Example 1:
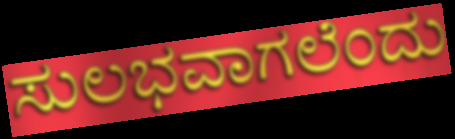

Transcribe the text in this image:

ಸುಲಭವಾಗಲೆಂದು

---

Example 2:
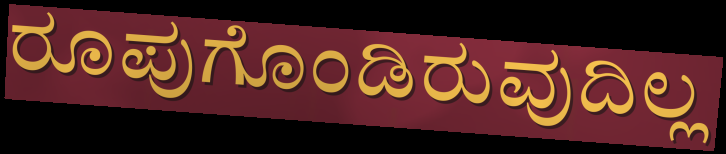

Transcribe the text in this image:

ರೂಪುಗೊಂಡಿರುವುದಿಲ್ಲ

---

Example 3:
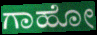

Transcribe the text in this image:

ಗಾಹೋ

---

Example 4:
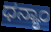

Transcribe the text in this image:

ಧನ್ಯಾಂ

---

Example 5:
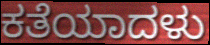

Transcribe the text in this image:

ಕತೆಯಾದಳು